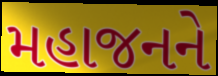
મહાજનને